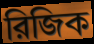
রিজিক